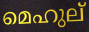
മെഹുല്